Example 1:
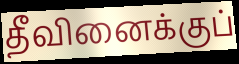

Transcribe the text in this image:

தீவினைக்குப்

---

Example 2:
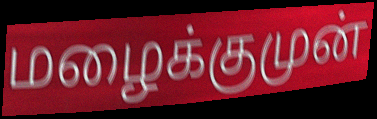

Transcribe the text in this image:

மழைக்குமுன்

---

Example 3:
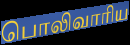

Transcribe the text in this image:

பொலிவாரிய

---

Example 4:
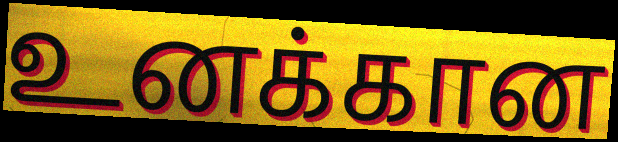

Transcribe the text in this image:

உனக்கான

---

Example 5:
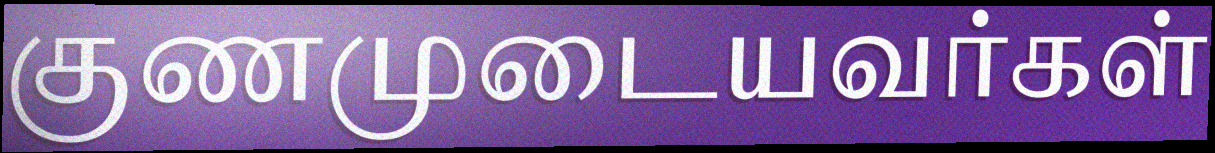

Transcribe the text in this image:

குணமுடையவர்கள்